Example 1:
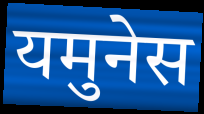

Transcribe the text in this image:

यमुनेस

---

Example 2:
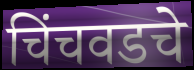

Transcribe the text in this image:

चिंचवडचे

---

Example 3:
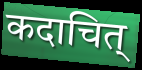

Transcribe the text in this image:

कदाचित्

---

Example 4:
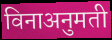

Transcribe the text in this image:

विनाअनुमती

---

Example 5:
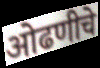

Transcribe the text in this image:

ओढणीचे